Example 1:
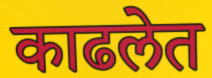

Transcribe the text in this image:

काढलेत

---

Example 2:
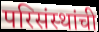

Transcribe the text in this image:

परिसंस्थांची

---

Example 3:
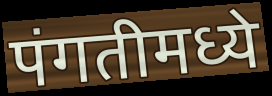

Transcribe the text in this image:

पंगतीमध्ये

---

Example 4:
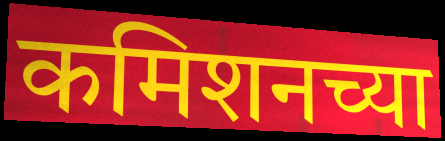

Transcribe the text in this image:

कमिशनच्या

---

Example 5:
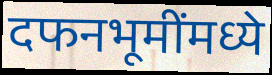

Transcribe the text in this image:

दफनभूमींमध्ये